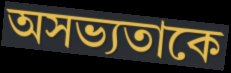
অসভ্যতাকে